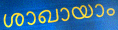
ശാഖായാം